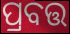
ପ୍ରବତ୍ତ